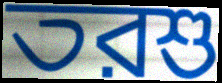
তরশু